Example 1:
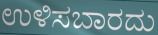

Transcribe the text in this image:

ಉಳಿಸಬಾರದು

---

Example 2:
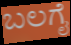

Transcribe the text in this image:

ಬಲಗೈ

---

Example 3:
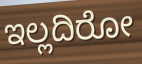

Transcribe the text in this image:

ಇಲ್ಲದಿರೋ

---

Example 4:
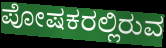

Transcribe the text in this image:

ಪೋಷಕರಲ್ಲಿರುವ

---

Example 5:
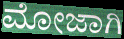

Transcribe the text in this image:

ಮೋಜಾಗಿ